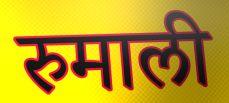
रुमाली